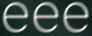
eee